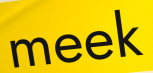
meek